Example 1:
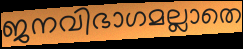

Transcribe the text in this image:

ജനവിഭാഗമല്ലാതെ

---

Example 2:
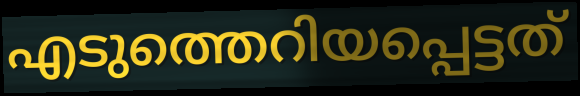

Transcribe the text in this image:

എടുത്തെറിയപ്പെട്ടത്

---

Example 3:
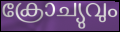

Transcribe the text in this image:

ക്രോച്യുവും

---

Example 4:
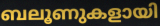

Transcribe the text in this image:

ബലൂണുകളായി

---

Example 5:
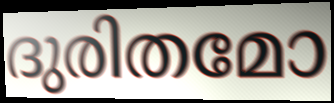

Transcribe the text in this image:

ദുരിതമോ